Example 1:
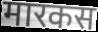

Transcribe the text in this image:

मारकस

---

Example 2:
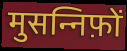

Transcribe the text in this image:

मुसन्निफ़ों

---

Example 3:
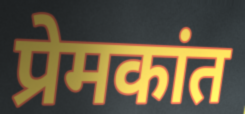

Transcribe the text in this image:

प्रेमकांत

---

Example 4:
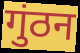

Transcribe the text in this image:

गुंठन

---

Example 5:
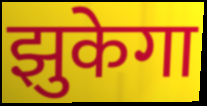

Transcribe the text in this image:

झुकेगा